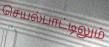
செயல்பாட்டிலும்